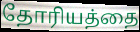
தோரியத்தை